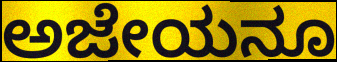
ಅಜೇಯನೂ